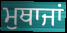
ਮੁਥਾਜਾਂ